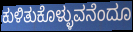
ಕುಳಿತುಕೊಳ್ಳುವನೆಂದೂ